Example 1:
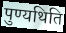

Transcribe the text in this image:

पुण्यथिति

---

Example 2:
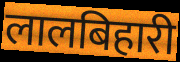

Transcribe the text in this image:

लालबिहारी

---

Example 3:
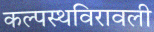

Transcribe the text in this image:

कल्पस्थविरावली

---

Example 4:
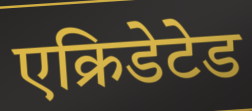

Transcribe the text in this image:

एक्रिडेटेड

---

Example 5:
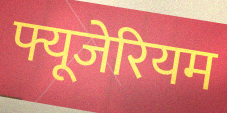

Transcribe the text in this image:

फ्यूजेरियम